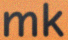
mk